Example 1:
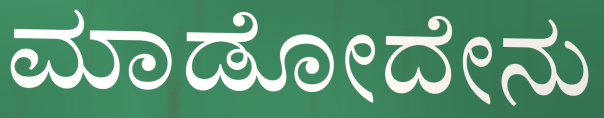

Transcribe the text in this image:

ಮಾಡೋದೇನು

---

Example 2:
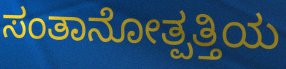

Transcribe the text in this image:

ಸಂತಾನೋತ್ಪತ್ತಿಯ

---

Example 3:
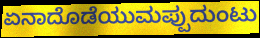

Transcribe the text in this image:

ಏನಾದೊಡೆಯುಮಪ್ಪುದುಂಟು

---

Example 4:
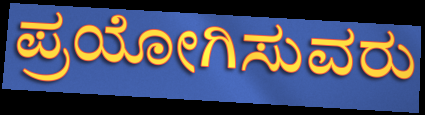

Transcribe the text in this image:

ಪ್ರಯೋಗಿಸುವರು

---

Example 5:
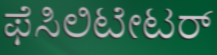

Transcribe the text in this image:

ಫೆಸಿಲಿಟೇಟರ್